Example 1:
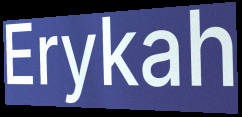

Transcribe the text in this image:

Erykah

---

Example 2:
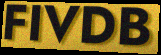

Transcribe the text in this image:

FIVDB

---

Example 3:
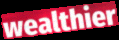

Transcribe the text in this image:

wealthier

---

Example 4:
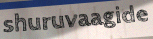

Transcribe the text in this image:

shuruvaagide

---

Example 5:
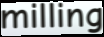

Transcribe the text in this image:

milling